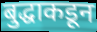
बुद्धाकडून